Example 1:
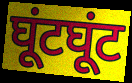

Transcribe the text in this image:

घूंटघूंट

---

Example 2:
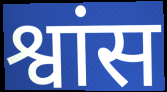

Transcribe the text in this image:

श्वांस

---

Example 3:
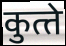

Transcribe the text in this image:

कुत्‍ते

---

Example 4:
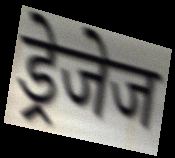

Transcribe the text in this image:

ड्रेजेज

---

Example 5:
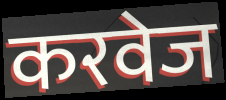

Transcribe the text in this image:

करवेज